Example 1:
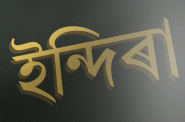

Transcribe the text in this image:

ইন্দিৰা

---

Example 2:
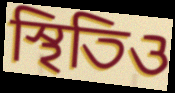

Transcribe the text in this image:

স্থিতিও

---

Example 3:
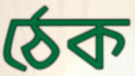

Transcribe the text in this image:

ঠেক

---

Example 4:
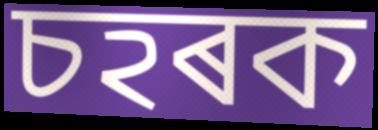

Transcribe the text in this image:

চহৰক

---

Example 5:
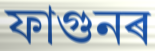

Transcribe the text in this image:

ফাগুনৰ